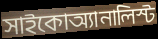
সাইকোঅ্যানালিস্ট